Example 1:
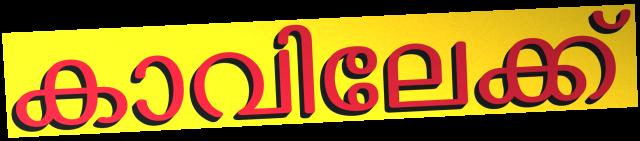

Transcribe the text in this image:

കാവിലേക്ക്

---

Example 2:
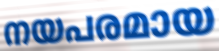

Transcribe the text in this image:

നയപരമായ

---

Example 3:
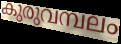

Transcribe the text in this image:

കുരുവമ്പലം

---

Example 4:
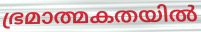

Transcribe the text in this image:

ഭ്രമാത്മകതയിൽ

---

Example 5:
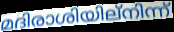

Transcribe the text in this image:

മദിരാശിയില്നിന്ന്